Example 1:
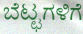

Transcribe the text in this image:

ಬೆಟ್ಟಗಳಿಗೆ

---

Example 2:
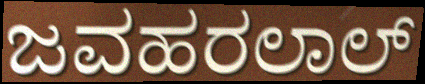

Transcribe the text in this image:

ಜವಹರಲಾಲ್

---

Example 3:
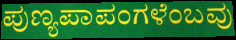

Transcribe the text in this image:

ಪುಣ್ಯಪಾಪಂಗಳೆಂಬವು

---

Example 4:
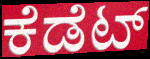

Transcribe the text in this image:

ಕೆಡೆಟ್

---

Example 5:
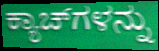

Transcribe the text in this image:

ಕ್ಯಾಚ್‌ಗಳನ್ನು